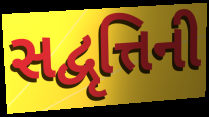
સદ્વૃત્તિની